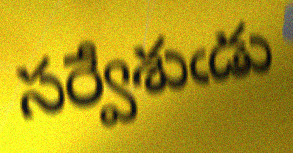
సర్వేశుఁడు